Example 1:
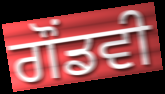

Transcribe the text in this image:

ਗੌਂਡਵੀ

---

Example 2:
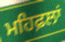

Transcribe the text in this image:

ਮਹਿਫ਼ਲਾਂ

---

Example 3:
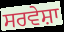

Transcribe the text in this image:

ਸਰਵੇਸ਼ਾ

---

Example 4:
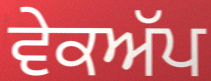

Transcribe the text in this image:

ਵੇਕਅੱਪ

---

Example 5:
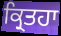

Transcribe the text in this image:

ਕ੍ਰਿਤਹਾ